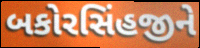
બકોરસિંહજીને